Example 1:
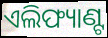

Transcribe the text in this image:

ଏଲିଫ୍ୟାଣ୍ଟ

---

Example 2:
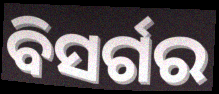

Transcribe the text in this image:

ବିସର୍ଗର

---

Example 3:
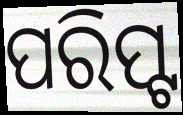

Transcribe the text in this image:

ପରିପ୍ଟ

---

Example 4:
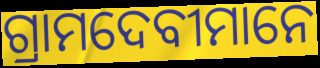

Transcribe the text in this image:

ଗ୍ରାମଦେବୀମାନେ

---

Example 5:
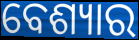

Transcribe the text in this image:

ବେଶ୍ୟାର